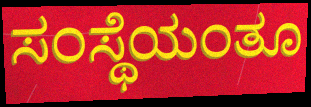
ಸಂಸ್ಥೆಯಂತೂ